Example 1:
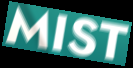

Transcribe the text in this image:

MIST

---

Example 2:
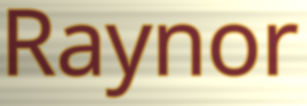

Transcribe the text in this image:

Raynor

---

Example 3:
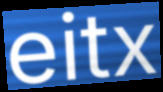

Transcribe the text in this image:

eitx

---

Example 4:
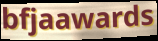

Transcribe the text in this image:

bfjaawards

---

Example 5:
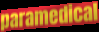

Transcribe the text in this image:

paramedical